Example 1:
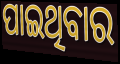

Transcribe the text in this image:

ପାଇଥିବାର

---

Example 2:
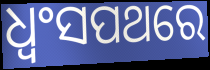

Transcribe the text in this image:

ଧ୍ବଂସପଥରେ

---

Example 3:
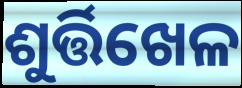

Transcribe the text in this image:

ଶୁର୍ତ୍ତିଖେଳ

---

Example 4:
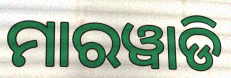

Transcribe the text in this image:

ମାରୱାଡି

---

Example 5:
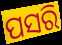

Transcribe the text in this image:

ପସରି